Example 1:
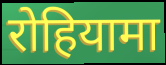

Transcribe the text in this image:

रोहियामा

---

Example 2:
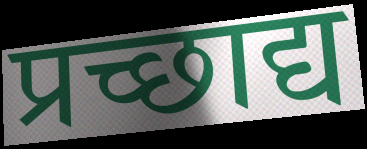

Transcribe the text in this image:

प्रच्छाद्य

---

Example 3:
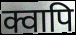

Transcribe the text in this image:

क्वापि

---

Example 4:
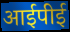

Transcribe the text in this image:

आईपीई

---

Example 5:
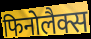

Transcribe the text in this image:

फिनोलैक्स